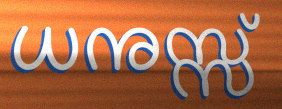
ധനുസ്സ്